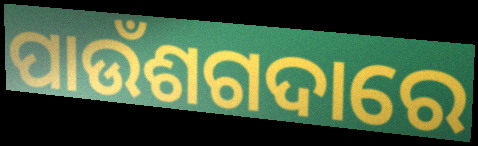
ପାଉଁଶଗଦାରେ